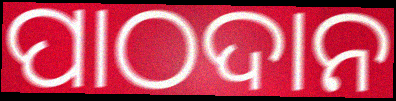
ପାଠଦାନ